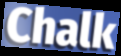
Chalk